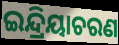
ଇନ୍ଦ୍ରିୟାଚରଣ